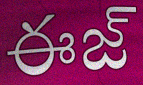
ఈజ్